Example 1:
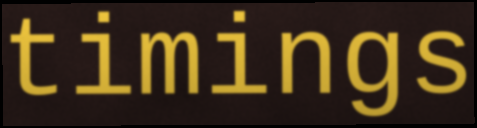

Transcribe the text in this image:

timings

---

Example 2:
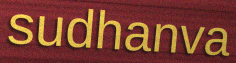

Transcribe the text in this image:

sudhanva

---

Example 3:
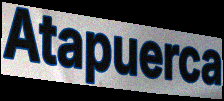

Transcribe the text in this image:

Atapuerca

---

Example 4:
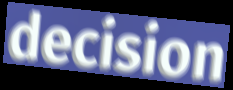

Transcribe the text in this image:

decision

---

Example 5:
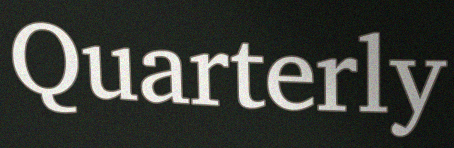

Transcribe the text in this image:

Quarterly